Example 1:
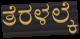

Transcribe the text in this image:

ತೆರಳಲ್ಕೆ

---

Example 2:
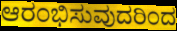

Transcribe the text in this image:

ಆರಂಭಿಸುವುದರಿಂದ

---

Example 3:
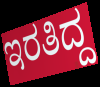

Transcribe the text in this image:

ಇರತಿದ್ದ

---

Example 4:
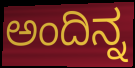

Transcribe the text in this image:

ಅಂದಿನ್ನ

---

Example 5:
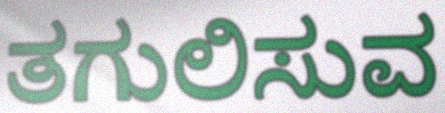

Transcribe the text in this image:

ತಗುಲಿಸುವ